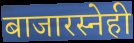
बाजारस्नेही